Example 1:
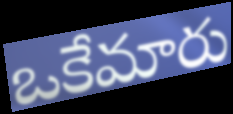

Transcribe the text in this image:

ఒకేమారు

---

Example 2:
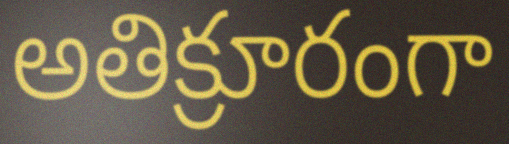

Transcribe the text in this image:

అతిక్రూరంగా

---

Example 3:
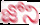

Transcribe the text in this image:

జోని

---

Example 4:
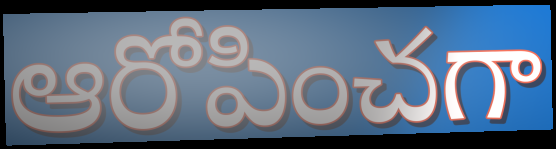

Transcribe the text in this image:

ఆరోపించగా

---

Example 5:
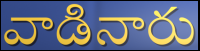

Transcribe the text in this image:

వాడినారు